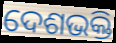
ଦେଶଭକ୍ତି